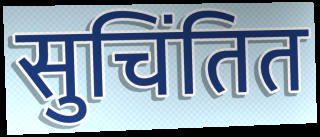
सुचिंतित